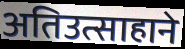
अतिउत्साहाने